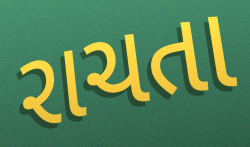
રાચતા